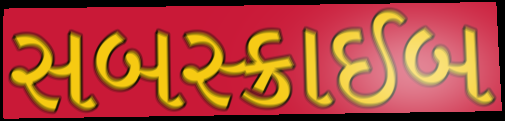
સબસ્ક્રાઈબ